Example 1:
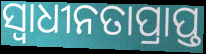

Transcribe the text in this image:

ସ୍ବାଧୀନତାପ୍ରାପ୍ତ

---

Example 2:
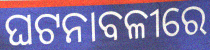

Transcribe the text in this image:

ଘଟନାବଳୀରେ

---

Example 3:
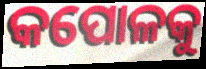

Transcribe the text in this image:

କପୋଳକୁ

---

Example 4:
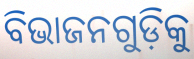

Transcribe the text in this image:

ବିଭାଜନଗୁଡ଼ିକୁ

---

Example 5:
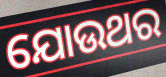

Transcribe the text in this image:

ଯୋଉଥର